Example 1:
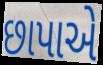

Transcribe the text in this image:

છાપાએ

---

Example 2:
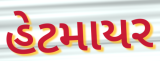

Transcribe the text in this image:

હેટમાયર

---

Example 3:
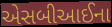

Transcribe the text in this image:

એસબીઆઈના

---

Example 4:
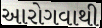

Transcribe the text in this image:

આરોગવાથી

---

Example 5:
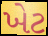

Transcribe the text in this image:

ખેટ